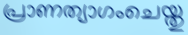
പ്രാണത്യാഗംചെയ്തു